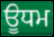
ਊਧਮ